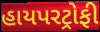
હાયપરટ્રોફી